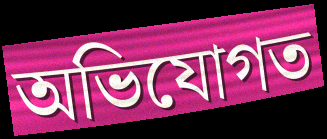
অভিযোগত